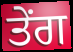
ਤੇਂਗ